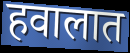
हवालात